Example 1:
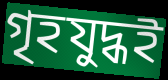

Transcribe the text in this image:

গৃহযুদ্ধই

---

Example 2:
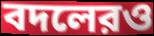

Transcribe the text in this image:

বদলেরও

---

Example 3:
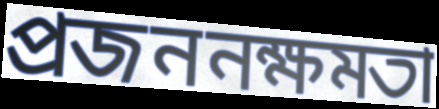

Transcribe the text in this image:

প্রজননক্ষমতা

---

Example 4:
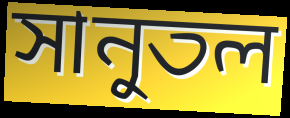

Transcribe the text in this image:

সানুতল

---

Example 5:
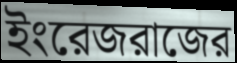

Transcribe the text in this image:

ইংরেজরাজের